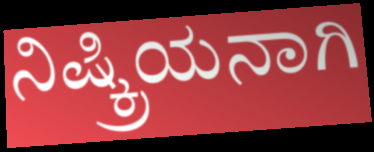
ನಿಷ್ಕ್ರಿಯನಾಗಿ